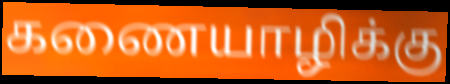
கணையாழிக்கு